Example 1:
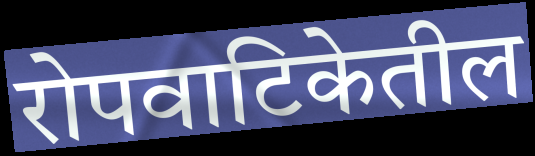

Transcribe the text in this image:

रोपवाटिकेतील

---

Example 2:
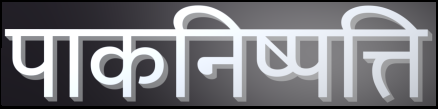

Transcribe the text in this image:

पाकनिष्पत्ति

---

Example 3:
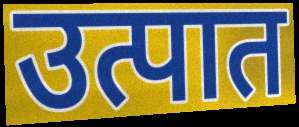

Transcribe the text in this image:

उत्पात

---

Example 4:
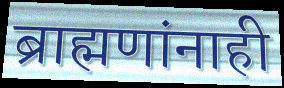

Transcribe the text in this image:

ब्राह्मणांनाही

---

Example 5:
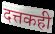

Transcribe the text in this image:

दत्तकही